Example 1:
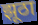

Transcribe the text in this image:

झूठा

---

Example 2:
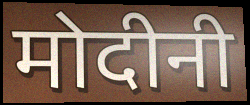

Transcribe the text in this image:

मोदीनी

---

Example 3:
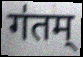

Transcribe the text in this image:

ग॑तम्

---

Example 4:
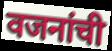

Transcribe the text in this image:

वजनांची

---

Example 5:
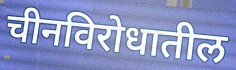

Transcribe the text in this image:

चीनविरोधातील